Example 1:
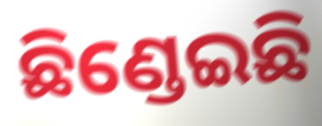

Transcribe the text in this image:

ଛିଣ୍ଡେଇଛି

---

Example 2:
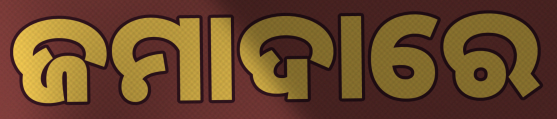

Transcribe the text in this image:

ଜମାଦାରେ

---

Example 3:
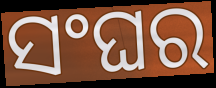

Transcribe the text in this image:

ସଂଘର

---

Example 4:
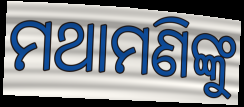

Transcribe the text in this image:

ମଥାମଣିଙ୍କୁ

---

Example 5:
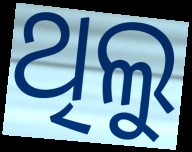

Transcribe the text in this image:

ଥିଲୁ